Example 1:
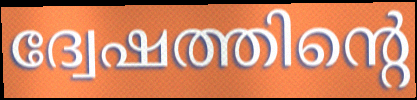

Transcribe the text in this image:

ദ്വേഷത്തിന്റെ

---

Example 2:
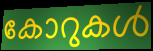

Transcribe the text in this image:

കോറുകൾ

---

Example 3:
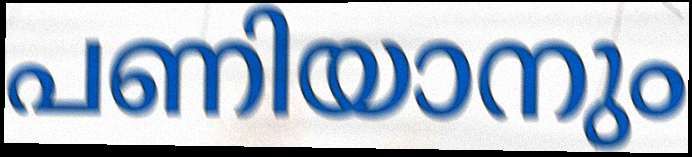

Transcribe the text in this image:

പണിയാനും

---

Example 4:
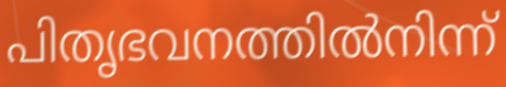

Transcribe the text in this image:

പിതൃഭവനത്തിൽനിന്ന്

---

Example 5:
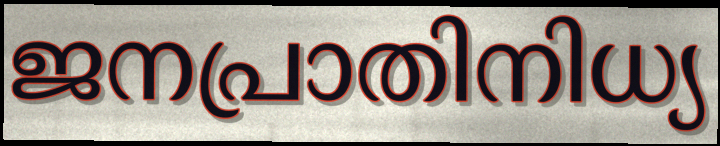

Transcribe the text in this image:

ജനപ്രാതിനിധ്യ